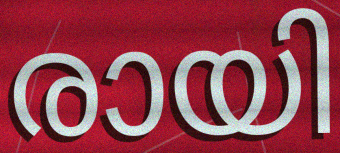
രായി